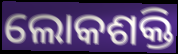
ଲୋକଶକ୍ତି